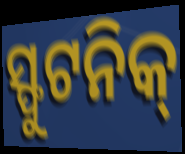
ସ୍ଫୁଟନିକ୍